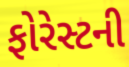
ફોરેસ્ટની